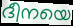
ദീനയെ